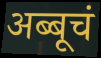
अब्बूचं